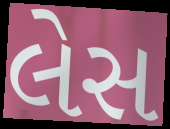
લેસ